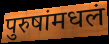
पुरुषांमधलं